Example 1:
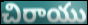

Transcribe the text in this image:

చిరాయు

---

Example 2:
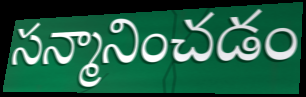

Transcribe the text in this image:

సన్మానించడం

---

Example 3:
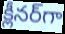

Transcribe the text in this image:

క్లీనర్‌గా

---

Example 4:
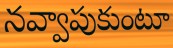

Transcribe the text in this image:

నవ్వాపుకుంటూ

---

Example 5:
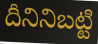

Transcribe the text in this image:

దీనినిబట్టి